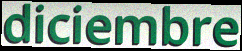
diciembre